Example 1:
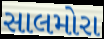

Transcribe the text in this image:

સાલમોરા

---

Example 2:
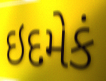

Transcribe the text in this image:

ઇદમેકં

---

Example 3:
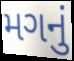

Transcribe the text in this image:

મગનું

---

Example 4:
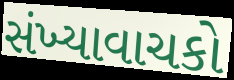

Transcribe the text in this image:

સંખ્યાવાચકો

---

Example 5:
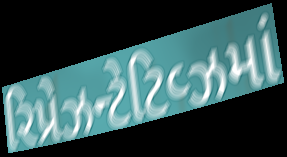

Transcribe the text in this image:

રિપ્રેઝન્ટેટિવ્ઝમાં